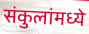
संकुलांमध्ये